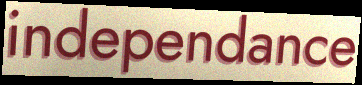
independance